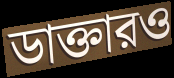
ডাক্তারও